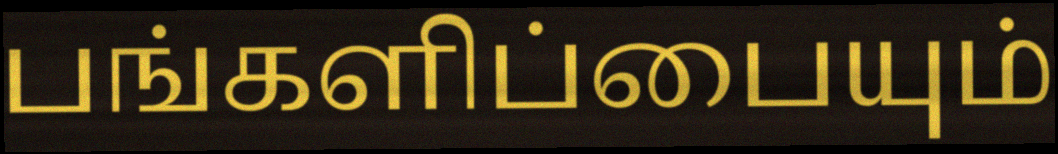
பங்களிப்பையும்